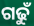
ଗଢୁଁ